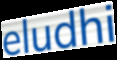
eludhi